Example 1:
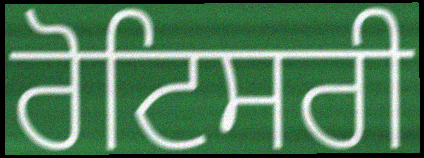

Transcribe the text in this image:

ਰੋਟਿਸਰੀ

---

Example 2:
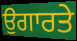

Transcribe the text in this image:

ਉਗਾਰਤੇ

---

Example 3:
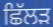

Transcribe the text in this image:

ਛਿੱਲੜ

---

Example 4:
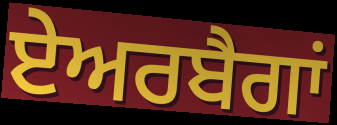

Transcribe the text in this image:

ਏਅਰਬੈਗਾਂ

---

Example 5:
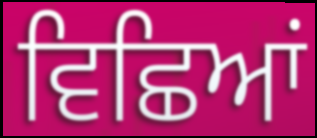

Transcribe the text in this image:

ਵਿਛਿਆਂ